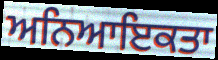
ਅਨਿਆਇਕਤਾ